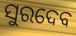
ସୁରଦେବ